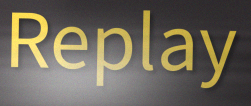
Replay